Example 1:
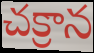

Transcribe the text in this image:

చక్రాన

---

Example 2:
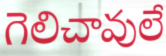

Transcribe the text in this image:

గెలిచావులే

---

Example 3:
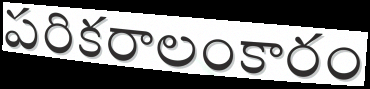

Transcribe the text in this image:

పరికరాలంకారం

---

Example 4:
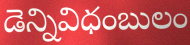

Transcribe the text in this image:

డెన్నివిధంబులం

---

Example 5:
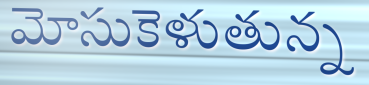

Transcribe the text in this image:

మోసుకెళుతున్న